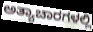
ಅತ್ಯಾಚಾರಗಳಲ್ಲಿ